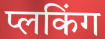
प्लकिंग